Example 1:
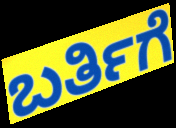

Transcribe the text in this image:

ಬರ್ತಿಗೆ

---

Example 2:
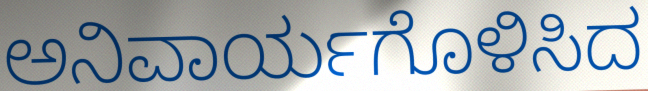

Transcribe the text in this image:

ಅನಿವಾರ್ಯಗೊಳಿಸಿದ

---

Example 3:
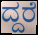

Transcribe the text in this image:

ದ್ದರೆ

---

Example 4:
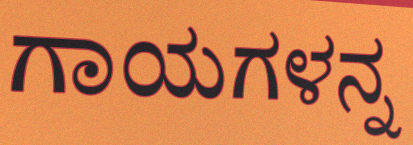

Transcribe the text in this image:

ಗಾಯಗಳನ್ನ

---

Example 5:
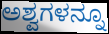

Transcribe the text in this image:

ಅಶ್ವಗಳನ್ನೂ